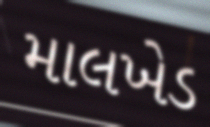
માલખેડ